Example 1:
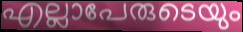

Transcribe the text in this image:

എല്ലാപേരുടെയും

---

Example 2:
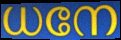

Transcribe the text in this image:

ധനേ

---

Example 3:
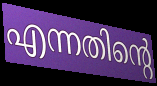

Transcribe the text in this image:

എന്നതിന്റെ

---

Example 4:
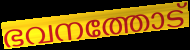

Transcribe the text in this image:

ഭവനത്തോട്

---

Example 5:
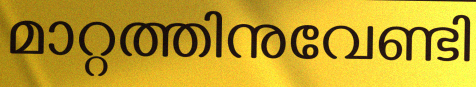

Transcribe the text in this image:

മാറ്റത്തിനുവേണ്ടി